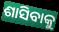
ଶାସିବାକୁ